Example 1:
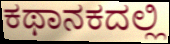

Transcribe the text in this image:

ಕಥಾನಕದಲ್ಲಿ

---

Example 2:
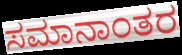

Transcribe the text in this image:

ಸಮಾನಾಂತರ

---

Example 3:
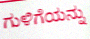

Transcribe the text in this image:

ಗುಳಿಗೆಯನ್ನು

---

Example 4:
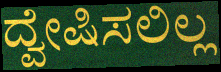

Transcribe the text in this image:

ದ್ವೇಷಿಸಲಿಲ್ಲ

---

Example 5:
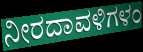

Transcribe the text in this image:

ನೀರದಾವಳಿಗಳಂ